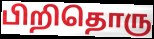
பிறிதொரு